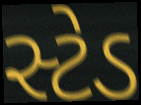
સ્ટેડ